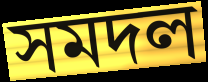
সমদল